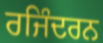
ਰਜਿੰਦਰਨ